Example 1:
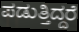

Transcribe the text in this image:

ಪಡುತ್ತಿದ್ದರೆ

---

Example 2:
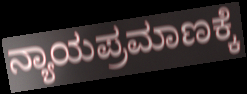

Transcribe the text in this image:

ನ್ಯಾಯಪ್ರಮಾಣಕ್ಕೆ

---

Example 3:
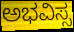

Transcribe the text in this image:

ಅಭವಿಸ್ಸ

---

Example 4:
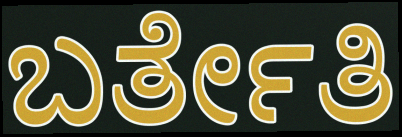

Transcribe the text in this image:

ಬರ್ತೇತಿ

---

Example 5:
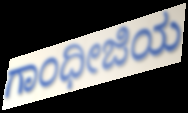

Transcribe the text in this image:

ಗಾಂಧೀಜಿಯ